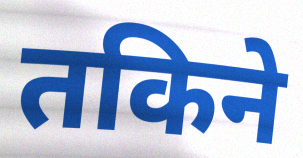
तकिने